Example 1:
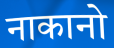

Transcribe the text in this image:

नाकानो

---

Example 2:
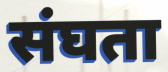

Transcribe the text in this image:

संघता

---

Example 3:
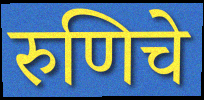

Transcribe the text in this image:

रुणिचे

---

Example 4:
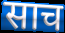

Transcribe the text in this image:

साच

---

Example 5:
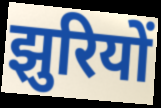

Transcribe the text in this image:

झुरियों